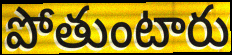
పోతుంటారు